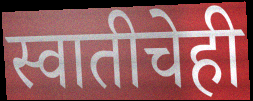
स्वातीचेही